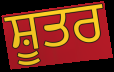
ਸ਼ੂਤਰ